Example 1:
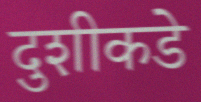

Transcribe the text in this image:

दुशीकडे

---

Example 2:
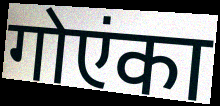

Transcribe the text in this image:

गोएंका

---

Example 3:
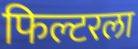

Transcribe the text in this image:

फिल्टरला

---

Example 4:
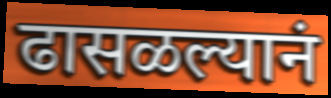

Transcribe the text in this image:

ढासळल्यानं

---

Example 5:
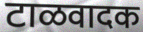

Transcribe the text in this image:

टाळवादक